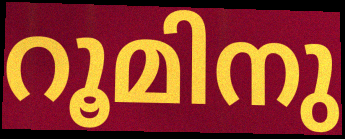
റൂമിനു